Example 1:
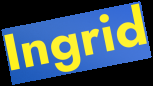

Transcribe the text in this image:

Ingrid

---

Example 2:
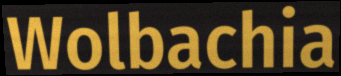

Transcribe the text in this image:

Wolbachia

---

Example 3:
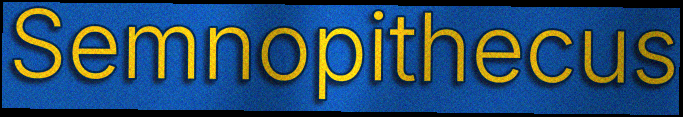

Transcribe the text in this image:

Semnopithecus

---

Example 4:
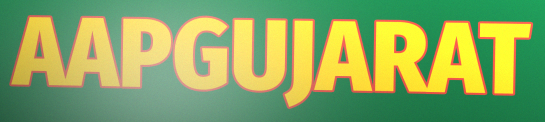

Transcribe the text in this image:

AAPGUJARAT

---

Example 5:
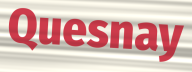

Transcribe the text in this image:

Quesnay